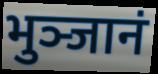
भुञ्जानं